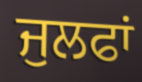
ਜੁਲਫਾਂ